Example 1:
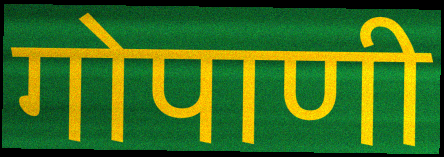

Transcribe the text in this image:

गोपाणी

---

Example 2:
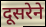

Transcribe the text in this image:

दूसरेने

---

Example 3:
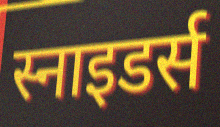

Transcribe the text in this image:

स्नाइडर्स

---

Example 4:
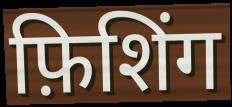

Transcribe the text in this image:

फ़िशिंग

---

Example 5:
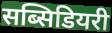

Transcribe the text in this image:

सब्सिडियरी